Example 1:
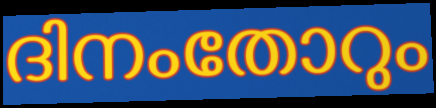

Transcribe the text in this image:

ദിനംതോറും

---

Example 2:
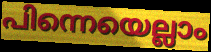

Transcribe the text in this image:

പിന്നെയെല്ലാം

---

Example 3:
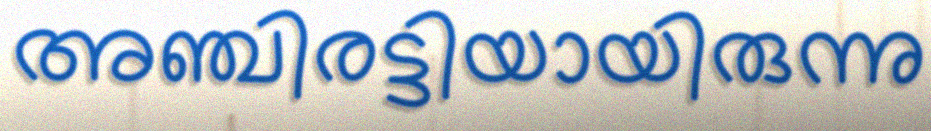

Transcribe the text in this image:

അഞ്ചിരട്ടിയായിരുന്നു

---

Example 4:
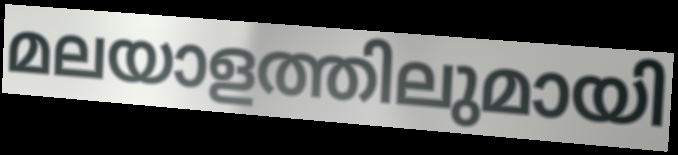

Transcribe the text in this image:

മലയാളത്തിലുമായി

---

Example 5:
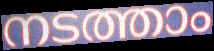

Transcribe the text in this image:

നടത്താം